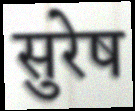
सुरेष